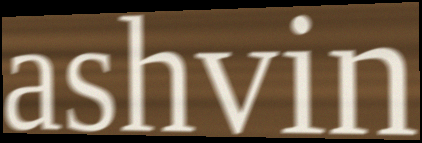
ashvin